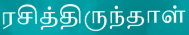
ரசித்திருந்தாள்